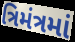
ત્રિમંત્રમાં